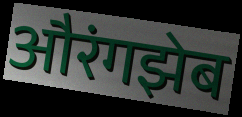
औरंगझेब